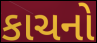
કાચનો